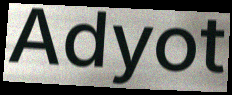
Adyot